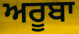
ਅਰੂਬਾ